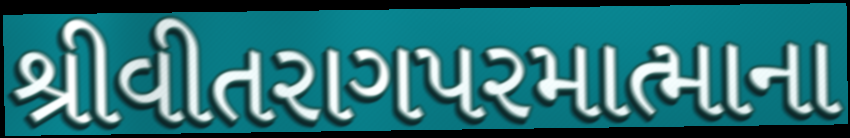
શ્રીવીતરાગપરમાત્માના